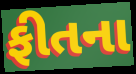
ફીતના